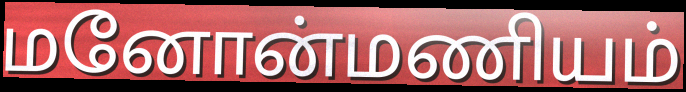
மனோன்மணியம்